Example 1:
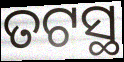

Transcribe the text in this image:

ତଟସ୍ଥ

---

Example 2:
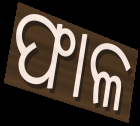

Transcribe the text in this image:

ଫାଳ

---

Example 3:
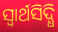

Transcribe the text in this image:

ସ୍ୱାର୍ଥସିଦ୍ଧି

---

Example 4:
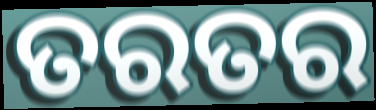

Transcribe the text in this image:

ତରତର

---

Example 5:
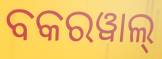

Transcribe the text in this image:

ବକରୱାଲ୍